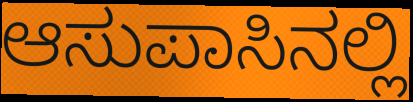
ಆಸುಪಾಸಿನಲ್ಲಿ